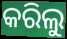
କରିଲୁ